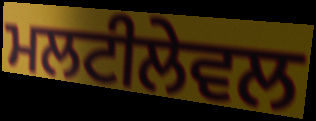
ਮਲਟੀਲੇਵਲ